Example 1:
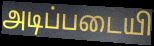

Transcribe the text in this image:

அடிப்படையி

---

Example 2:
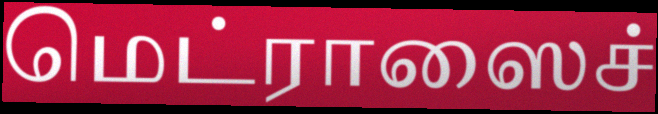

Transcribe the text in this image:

மெட்ராஸைச்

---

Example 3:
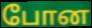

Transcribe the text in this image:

போன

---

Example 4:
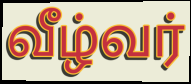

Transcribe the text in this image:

வீழ்வர்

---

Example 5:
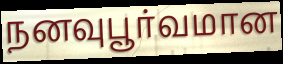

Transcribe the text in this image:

நனவுபூர்வமான